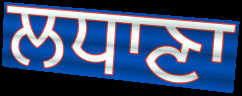
ਲਧਾਣਾ